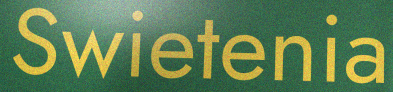
Swietenia